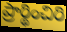
ప్రార్థించిరి